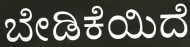
ಬೇಡಿಕೆಯಿದೆ